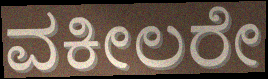
ವಕೀಲರೇ